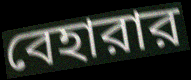
বেহারার